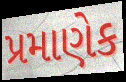
પ્રમાણેક